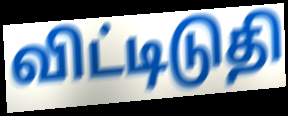
விட்டிடுதி